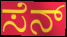
ಸೆನ್